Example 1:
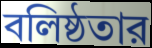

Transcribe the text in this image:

বলিষ্ঠতার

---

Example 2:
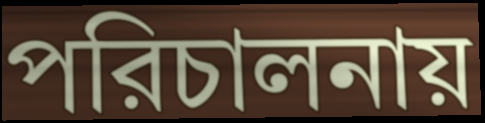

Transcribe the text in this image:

পরিচালনায়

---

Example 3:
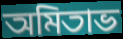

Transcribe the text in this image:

অমিতাভ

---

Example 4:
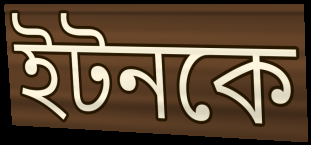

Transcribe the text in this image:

ইটনকে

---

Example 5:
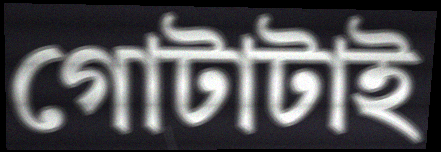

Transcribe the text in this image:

গোটাটাই